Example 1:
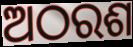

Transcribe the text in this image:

ଅଠରଶ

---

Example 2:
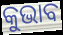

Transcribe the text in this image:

କୁଭାବ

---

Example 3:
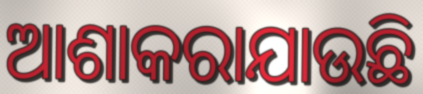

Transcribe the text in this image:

ଆଶାକରାଯାଉଛି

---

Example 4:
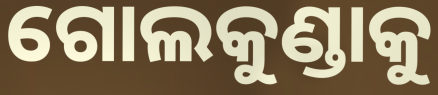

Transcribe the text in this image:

ଗୋଲକୁଣ୍ଡାକୁ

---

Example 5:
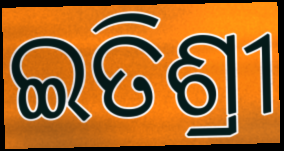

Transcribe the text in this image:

ଇତିଶ୍ରୀ